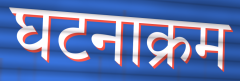
घटनाक्रम